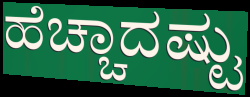
ಹೆಚ್ಚಾದಷ್ಟು